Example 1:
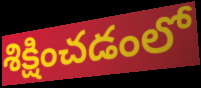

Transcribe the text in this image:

శిక్షించడంలో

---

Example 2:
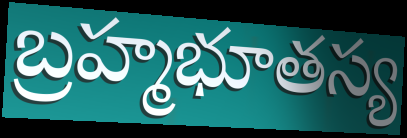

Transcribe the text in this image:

బ్రహ్మభూతస్య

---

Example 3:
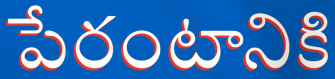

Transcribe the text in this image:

పేరంటానికి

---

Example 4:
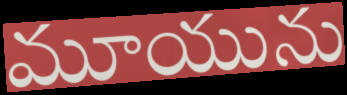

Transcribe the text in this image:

మూయును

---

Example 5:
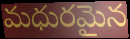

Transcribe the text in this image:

మధురమైన